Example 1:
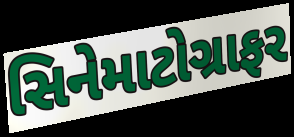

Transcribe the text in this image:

સિનેમાટોગ્રાફર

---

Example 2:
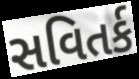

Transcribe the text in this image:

સવિતર્ક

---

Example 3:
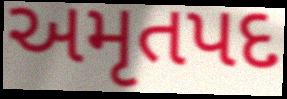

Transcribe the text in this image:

અમૃતપદ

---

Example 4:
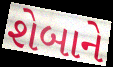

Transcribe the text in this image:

શેબાને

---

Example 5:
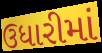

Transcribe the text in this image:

ઉધારીમાં